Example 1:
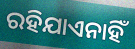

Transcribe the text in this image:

ରହିଯାଏନାହିଁ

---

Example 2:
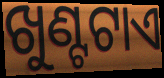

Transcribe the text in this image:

ଖୁଣ୍ଟଟାଏ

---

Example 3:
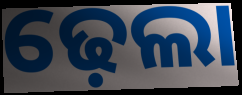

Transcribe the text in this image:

ଢ଼େଲା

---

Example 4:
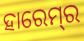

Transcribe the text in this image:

ହାରେମ୍‍ର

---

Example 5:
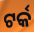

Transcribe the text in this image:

ଟର୍କ